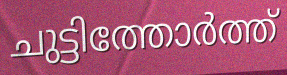
ചുട്ടിത്തോർത്ത്